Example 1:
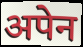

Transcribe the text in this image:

अपेन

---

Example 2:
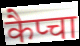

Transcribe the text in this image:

कैप्चा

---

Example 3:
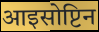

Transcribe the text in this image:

आइसोप्टिन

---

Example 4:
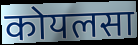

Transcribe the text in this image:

कोयलसा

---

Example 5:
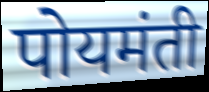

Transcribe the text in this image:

पोयमंती